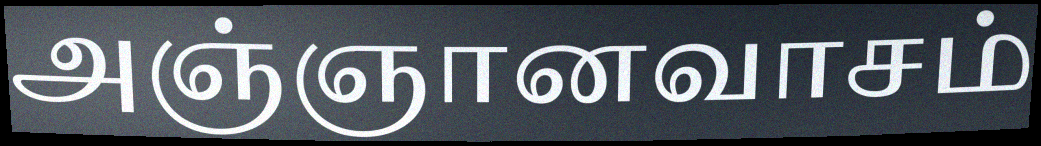
அஞ்ஞானவாசம்